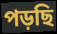
পড়ছি